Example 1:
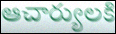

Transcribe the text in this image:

ఆచార్యులకి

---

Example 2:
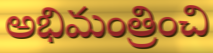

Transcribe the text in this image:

అభిమంత్రించి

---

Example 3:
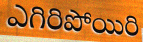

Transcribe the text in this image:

ఎగిరిపోయిరి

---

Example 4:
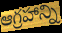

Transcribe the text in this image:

ఆగ్రహాన్ని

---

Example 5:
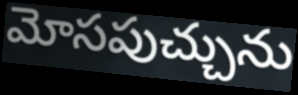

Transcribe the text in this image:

మోసపుచ్చును